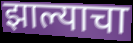
झाल्याचा